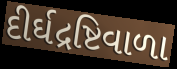
દીર્ઘદ્રષ્ટિવાળા